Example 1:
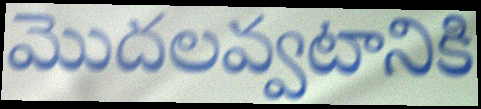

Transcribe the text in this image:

మొదలవ్వటానికి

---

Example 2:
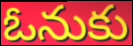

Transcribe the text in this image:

ఓనుకు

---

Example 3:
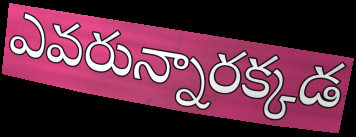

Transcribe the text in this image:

ఎవరున్నారక్కడ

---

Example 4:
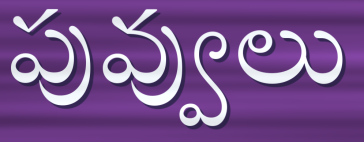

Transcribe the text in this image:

పువ్వులు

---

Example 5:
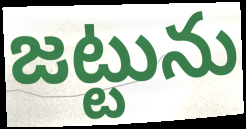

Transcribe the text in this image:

జట్టును